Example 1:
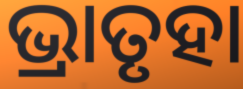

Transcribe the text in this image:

ଭ୍ରାତୃହା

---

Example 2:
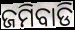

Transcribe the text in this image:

ଜମିବାଡି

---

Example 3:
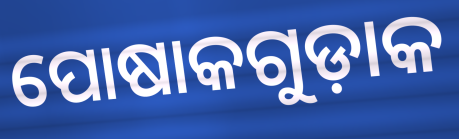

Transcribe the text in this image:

ପୋଷାକଗୁଡ଼ାକ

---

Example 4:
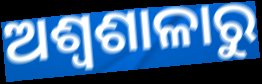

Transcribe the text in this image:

ଅଶ୍ୱଶାଳାରୁ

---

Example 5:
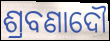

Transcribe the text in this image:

ଶ୍ରବଣାଦୌ